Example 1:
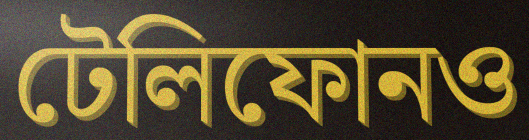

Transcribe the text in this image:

টেলিফোনও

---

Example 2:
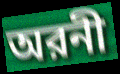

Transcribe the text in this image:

অরনী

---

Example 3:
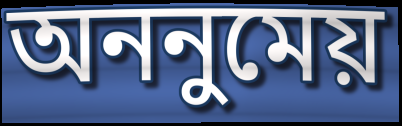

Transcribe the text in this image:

অননুমেয়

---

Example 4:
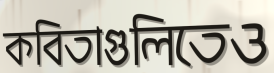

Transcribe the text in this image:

কবিতাগুলিতেও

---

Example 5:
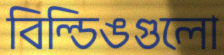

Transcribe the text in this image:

বিল্ডিঙগুলো